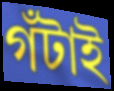
গঁটাই